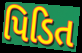
પિડિત